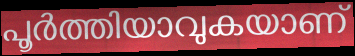
പൂർത്തിയാവുകയാണ്